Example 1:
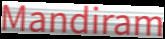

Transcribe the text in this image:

Mandiram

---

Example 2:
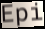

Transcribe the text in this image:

Epi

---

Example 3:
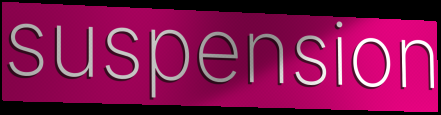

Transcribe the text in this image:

suspension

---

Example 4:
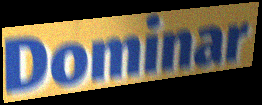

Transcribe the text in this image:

Dominar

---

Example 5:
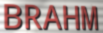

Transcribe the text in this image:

BRAHM